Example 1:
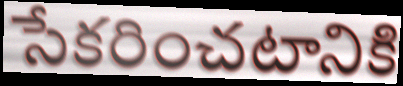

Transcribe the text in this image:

సేకరించటానికి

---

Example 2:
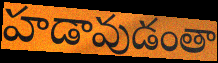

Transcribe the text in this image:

హడావుడంతా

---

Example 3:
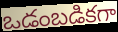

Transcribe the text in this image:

ఒడంబడికగా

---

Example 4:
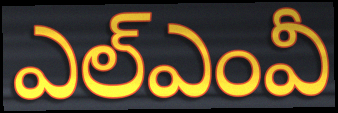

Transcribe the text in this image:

ఎల్ఎంవీ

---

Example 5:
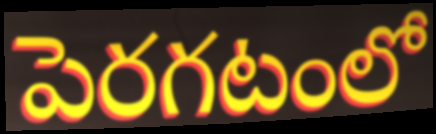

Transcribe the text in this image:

పెరగటంలో